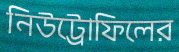
নিউট্রোফিলের